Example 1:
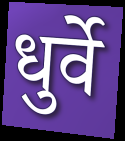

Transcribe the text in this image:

धुर्वे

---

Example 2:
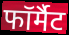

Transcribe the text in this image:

फॉर्मैट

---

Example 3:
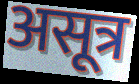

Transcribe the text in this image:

असूत्र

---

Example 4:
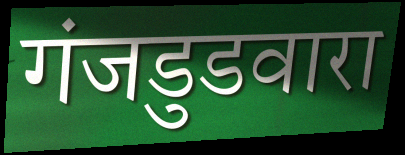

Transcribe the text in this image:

गंजडुडवारा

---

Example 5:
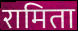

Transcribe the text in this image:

रामिता